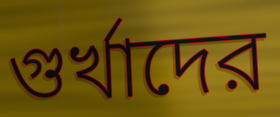
গুর্খাদের